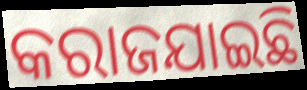
କରାଜଯାଇଛି